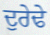
ਦੁਰੇਢੇ